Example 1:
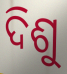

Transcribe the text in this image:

ଦିଶୁ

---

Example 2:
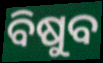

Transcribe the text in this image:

ବିଷୁବ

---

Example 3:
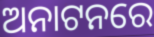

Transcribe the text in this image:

ଅନାଟନରେ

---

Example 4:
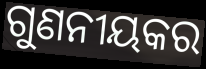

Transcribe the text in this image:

ଗୁଣନୀୟକର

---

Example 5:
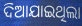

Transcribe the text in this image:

ଦିଆଯାଇଥିଲା